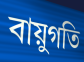
বায়ুগতি